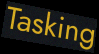
Tasking